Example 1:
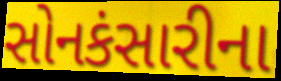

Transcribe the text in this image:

સોનકંસારીના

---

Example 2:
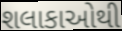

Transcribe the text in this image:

શલાકાઓથી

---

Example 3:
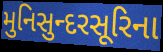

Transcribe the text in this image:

મુનિસુન્દરસૂરિના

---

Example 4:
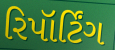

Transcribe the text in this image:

રિપૉર્ટિંગ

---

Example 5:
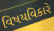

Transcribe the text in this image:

વિષયવિકારે